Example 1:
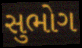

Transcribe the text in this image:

સુભોગ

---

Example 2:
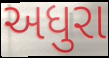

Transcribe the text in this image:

અધુરા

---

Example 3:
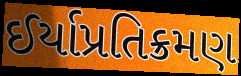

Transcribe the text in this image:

ઈર્યાપ્રતિક્રમણ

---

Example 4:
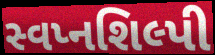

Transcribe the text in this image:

સ્વપ્નશિલ્પી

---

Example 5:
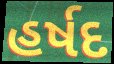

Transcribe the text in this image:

હર્ષદ